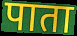
पाता